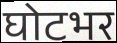
घोटभर